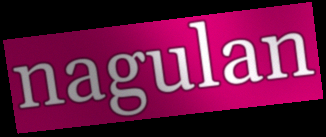
nagulan